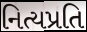
નિત્યપ્રતિ